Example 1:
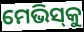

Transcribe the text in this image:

ମେଭିସ୍‌କୁ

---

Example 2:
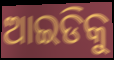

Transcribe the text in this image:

ଆଇଡିକୁ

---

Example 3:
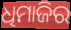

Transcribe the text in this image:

ଧିମାଜିର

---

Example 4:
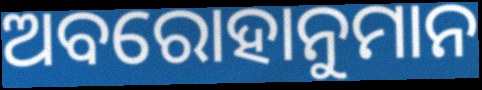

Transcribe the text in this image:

ଅବରୋହାନୁମାନ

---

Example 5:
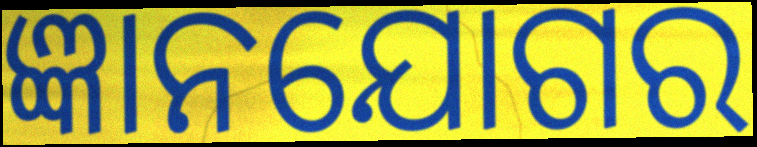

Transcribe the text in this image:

ଜ୍ଞାନଯୋଗର